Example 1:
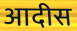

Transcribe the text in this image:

आदीस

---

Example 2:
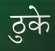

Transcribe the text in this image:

ठुके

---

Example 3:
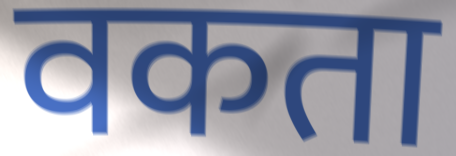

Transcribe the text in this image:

वकता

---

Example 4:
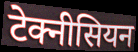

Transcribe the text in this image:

टेक्नीसियन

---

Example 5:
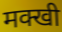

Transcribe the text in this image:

मक्खी